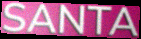
SANTA